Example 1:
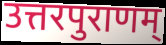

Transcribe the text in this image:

उत्तरपुराणम्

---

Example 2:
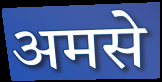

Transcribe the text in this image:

अमसे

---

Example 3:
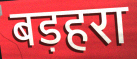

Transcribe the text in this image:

बड़हरा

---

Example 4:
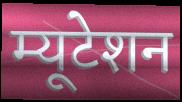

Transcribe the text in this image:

म्यूटेशन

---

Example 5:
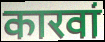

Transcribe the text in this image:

कारवां